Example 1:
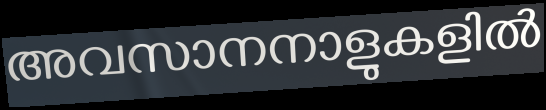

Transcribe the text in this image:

അവസാനനാളുകളിൽ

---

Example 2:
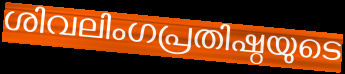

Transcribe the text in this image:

ശിവലിംഗപ്രതിഷ്ഠയുടെ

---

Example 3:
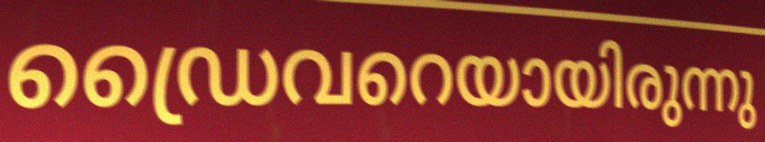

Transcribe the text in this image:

ഡ്രൈവറെയായിരുന്നു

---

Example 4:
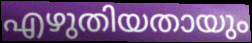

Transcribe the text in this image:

എഴുതിയതായും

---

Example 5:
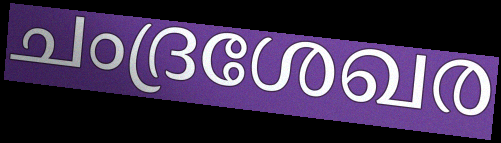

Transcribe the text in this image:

ചംദ്രശേഖര